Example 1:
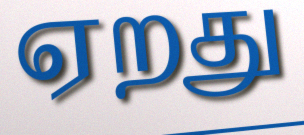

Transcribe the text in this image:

ஏறது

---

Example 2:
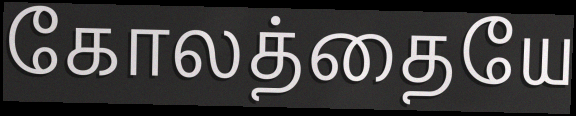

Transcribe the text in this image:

கோலத்தையே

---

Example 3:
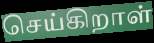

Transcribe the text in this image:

செய்கிறாள்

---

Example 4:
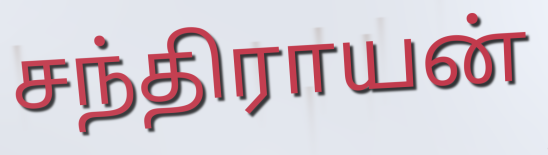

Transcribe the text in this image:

சந்திராயன்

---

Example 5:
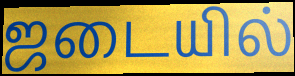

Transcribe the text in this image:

ஜடையில்